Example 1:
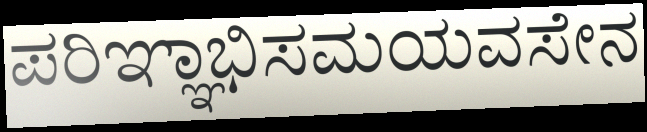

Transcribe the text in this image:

ಪರಿಞ್ಞಾಭಿಸಮಯವಸೇನ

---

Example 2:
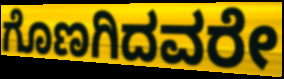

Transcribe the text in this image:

ಗೊಣಗಿದವರೇ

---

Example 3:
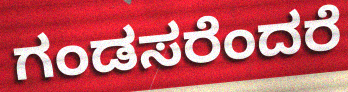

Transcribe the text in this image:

ಗಂಡಸರೆಂದರೆ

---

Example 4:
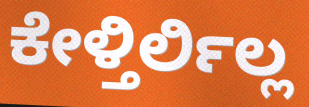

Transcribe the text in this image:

ಕೇಳ್ತಿರ್ಲಿಲ್ಲ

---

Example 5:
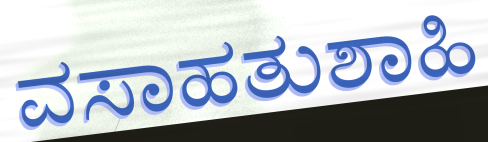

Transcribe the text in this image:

ವಸಾಹತುಶಾಹಿ